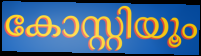
കോസ്റ്റിയൂം